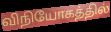
விநியோகத்தில்